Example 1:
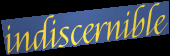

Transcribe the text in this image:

indiscernible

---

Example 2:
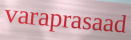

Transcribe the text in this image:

varaprasaad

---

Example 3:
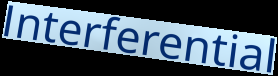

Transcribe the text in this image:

Interferential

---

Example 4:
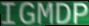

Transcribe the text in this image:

IGMDP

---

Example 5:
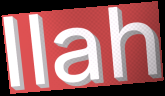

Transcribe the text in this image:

Ilah